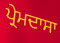
ਪ੍ਰੇਮਦਾਸਾ